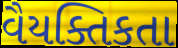
વૈયક્તિકતા